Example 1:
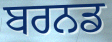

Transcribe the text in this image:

ਬਰਨਡ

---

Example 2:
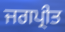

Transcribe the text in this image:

ਜਗਪ੍ਰੀਤ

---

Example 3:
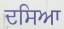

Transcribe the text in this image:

ਦਸਿਆ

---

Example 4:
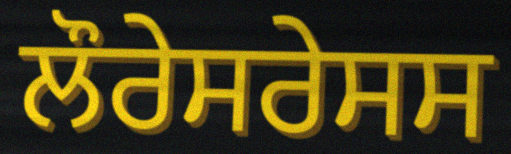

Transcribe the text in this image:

ਲੌਰੇਸਰੇਸਸ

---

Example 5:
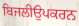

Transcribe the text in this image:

ਬਿਜਲੀਉਪਕਰਨ